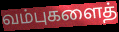
வம்புகளைத்